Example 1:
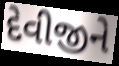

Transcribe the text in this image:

દેવીજીને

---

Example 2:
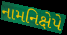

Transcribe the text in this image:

નામનિક્ષેપે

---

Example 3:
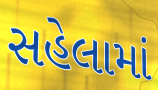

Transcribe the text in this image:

સહેલામાં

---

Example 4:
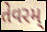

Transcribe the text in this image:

તેવરમ્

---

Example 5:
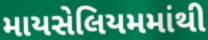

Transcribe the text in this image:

માયસેલિયમમાંથી